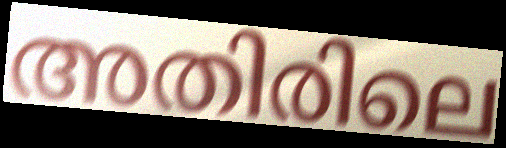
അതിരിലെ